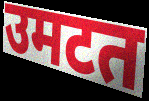
उमटत